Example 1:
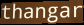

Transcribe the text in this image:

thangar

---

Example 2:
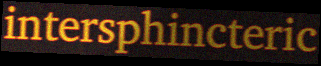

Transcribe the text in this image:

intersphincteric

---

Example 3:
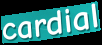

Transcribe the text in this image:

cardial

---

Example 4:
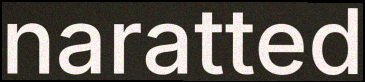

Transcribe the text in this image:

naratted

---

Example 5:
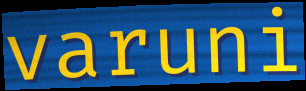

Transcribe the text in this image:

varuni